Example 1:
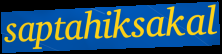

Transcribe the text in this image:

saptahiksakal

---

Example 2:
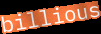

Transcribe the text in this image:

billious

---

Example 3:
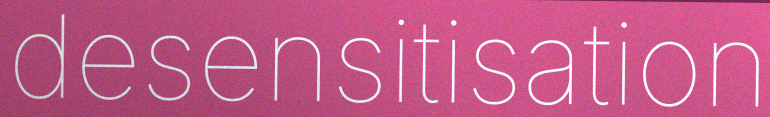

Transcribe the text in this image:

desensitisation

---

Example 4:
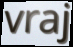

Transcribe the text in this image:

vraj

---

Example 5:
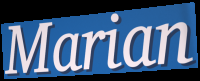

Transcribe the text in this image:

Marian